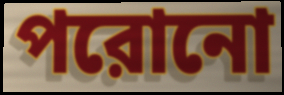
পরোনো